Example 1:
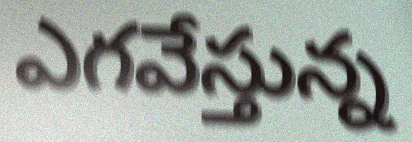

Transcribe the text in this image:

ఎగవేస్తున్న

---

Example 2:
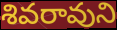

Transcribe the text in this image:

శివరావుని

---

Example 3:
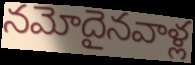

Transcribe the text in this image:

నమోదైనవాళ్ల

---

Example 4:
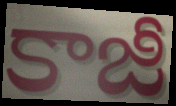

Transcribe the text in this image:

కాజీ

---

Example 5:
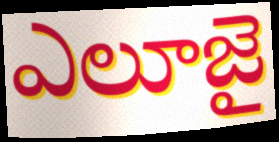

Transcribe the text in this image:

ఎలూజై